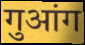
गुआंग